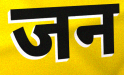
जन